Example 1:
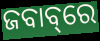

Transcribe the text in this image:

ଜବାବ୍‌ରେ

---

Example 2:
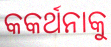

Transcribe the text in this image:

କକର୍ଥନାକୁ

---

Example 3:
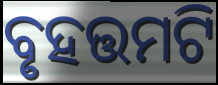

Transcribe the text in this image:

ବୃହତ୍ତମଟି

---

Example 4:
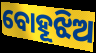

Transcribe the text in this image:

ବୋହୂଝିଅ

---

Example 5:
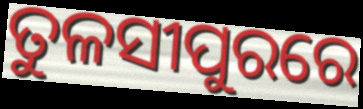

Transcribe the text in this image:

ତୁଳସୀପୁରରେ